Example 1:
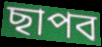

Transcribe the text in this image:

ছাপব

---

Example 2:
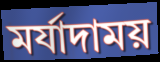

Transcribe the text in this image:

মর্যাদাময়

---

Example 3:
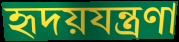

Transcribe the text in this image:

হৃদয়যন্ত্রণা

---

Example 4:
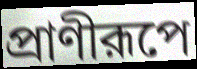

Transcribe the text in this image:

প্রাণীরূপে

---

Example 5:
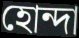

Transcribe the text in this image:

হোন্দা